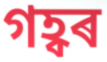
গহ্বৰ